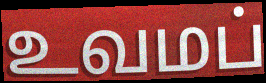
உவமப்